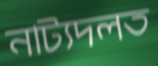
নাট্যদলত